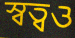
স্বত্বও